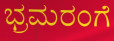
ಭ್ರಮರಂಗೆ